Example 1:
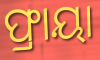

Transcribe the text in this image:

ଫ୍ରାୟା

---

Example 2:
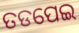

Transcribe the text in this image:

ତଡପେଇ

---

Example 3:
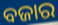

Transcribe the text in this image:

ବଜାର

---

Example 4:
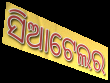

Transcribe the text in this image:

ସିଆଟେଲର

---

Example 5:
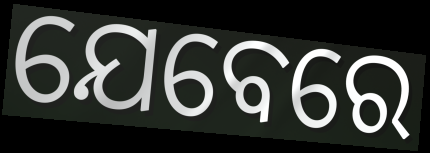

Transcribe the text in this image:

ଯେବେରେ